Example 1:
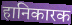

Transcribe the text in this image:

हानिकारक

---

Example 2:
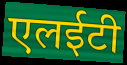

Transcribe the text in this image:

एलईटी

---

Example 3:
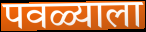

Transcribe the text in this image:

पवळ्याला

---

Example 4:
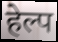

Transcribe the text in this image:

हेल्प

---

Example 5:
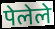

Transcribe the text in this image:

पेलेले